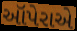
ઑપેરાએ